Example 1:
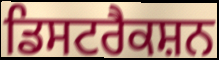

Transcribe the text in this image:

ਡਿਸਟਰੈਕਸ਼ਨ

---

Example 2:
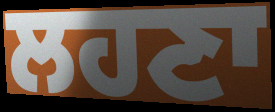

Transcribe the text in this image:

ਲਹਣਾ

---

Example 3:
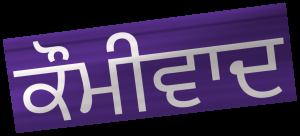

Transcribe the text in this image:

ਕੌਮੀਵਾਦ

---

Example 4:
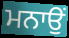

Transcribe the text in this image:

ਮਨਾਉਂ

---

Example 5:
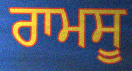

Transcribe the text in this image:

ਰਾਮਸੂ